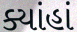
ક્યાંહાં